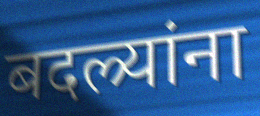
बदल्यांना